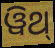
ୱିଥ୍